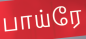
பாய்ரே